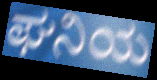
ಘನಿಯ